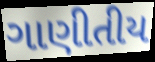
ગાણીતીય